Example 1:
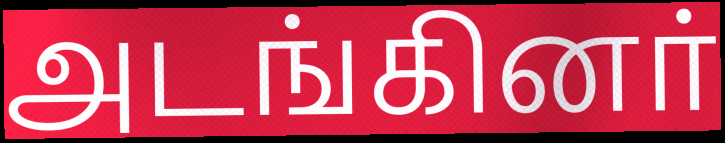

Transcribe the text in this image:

அடங்கினர்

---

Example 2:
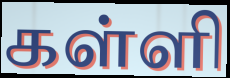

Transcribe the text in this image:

கள்ளி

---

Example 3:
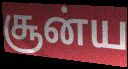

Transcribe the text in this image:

சூன்ய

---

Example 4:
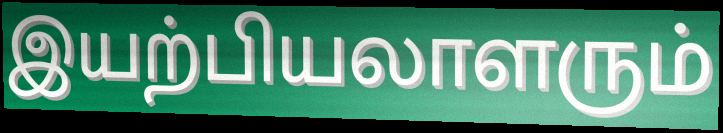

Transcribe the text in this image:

இயற்பியலாளரும்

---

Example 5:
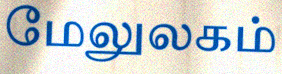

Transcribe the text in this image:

மேலுலகம்